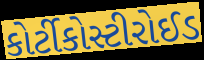
કોર્ટીકોસ્ટીરોઈડ